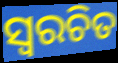
ସ୍ଵରଚିତ